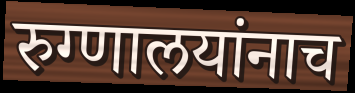
रुग्णालयांनाच